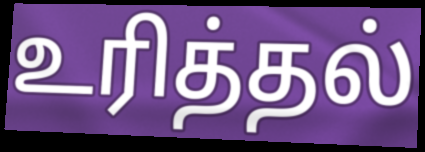
உரித்தல்